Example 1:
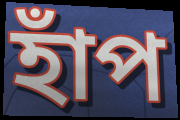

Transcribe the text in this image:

হাঁপ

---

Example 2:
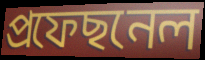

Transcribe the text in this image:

প্ৰফেছনেল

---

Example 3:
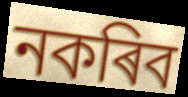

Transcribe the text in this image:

নকৰিব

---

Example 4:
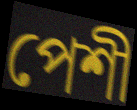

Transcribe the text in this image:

পেশী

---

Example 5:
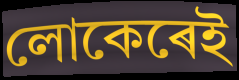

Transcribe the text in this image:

লোকেৰেই